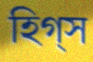
হিগ্স